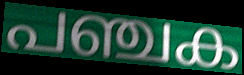
പഞ്ചക